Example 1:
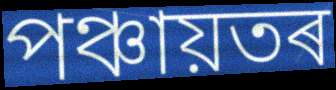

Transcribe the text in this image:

পঞ্চায়তৰ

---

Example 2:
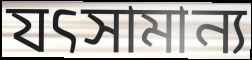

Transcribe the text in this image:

যৎসামান্য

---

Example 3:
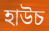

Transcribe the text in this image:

হাউচ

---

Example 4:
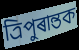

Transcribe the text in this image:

ত্ৰিপুৰান্তক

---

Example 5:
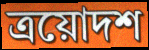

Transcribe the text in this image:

ত্ৰয়োদশ